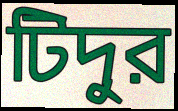
টিদুর